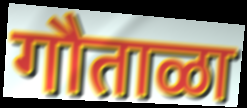
गौताळा